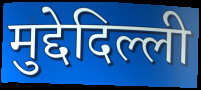
मुद्देदिल्ली